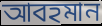
আবহমান